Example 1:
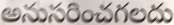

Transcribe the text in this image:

అనుసరించగలదు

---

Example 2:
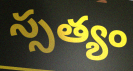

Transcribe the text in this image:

స్సత్యం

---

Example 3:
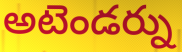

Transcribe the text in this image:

అటెండర్ను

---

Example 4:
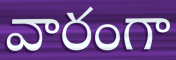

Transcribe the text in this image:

వారంగా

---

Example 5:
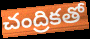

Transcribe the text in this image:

చంద్రికతో